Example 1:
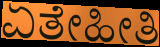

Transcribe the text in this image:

ಏತೇಹೀತಿ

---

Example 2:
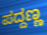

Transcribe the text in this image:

ಪದ್ದಣ್ಣ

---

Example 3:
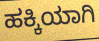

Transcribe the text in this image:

ಹಕ್ಕಿಯಾಗಿ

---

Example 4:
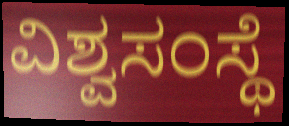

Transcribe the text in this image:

ವಿಶ್ವಸಂಸ್ಥೆ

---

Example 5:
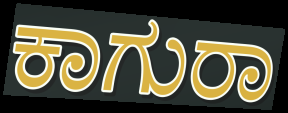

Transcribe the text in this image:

ಕಾಗುರಾ